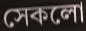
সেকলো